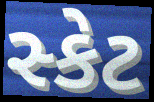
સ્કેટ